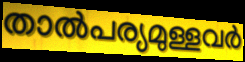
താൽപര്യമുള്ളവർ